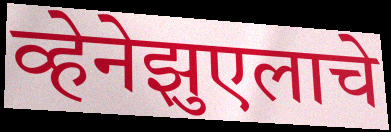
व्हेनेझुएलाचे